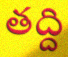
తద్ది